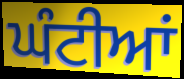
ਘੰਟੀਆਂ